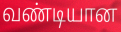
வண்டியான